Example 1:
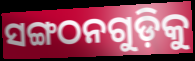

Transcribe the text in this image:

ସଙ୍ଗଠନଗୁଡ଼ିକୁ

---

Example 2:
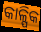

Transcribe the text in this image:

କାଳ୍ପିକ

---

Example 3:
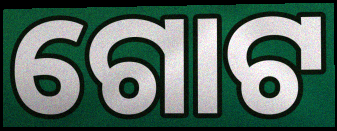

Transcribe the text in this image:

ଗୋଟ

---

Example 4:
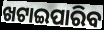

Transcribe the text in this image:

ଖଟାଇପାରିବ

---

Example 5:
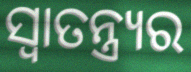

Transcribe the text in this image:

ସ୍ଵାତନ୍ତ୍ର୍ୟର